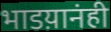
भाडय़ानंही